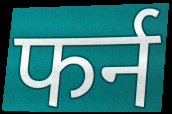
फर्न